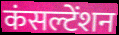
कंसल्टेंशन